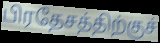
பிரதேசத்திற்குச்